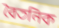
বৈতনিক